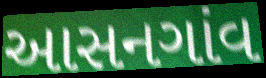
આસનગાંવ